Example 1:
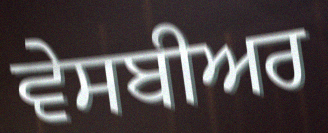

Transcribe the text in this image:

ਵੇਸਬੀਅਰ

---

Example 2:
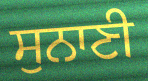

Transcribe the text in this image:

ਸੁਨਾਣੀ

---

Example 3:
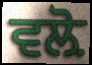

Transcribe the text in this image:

ਵਲ਼ੋ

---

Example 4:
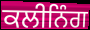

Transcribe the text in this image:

ਕਲੀਨਿੰਗ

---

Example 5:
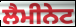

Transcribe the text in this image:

ਲੈਮੀਨੇਟ